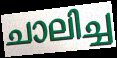
ചാലിച്ച